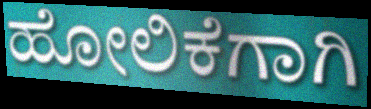
ಹೋಲಿಕೆಗಾಗಿ